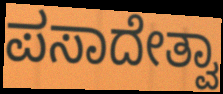
ಪಸಾದೇತ್ವಾ